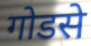
गोडसे